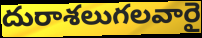
దురాశలుగలవారై